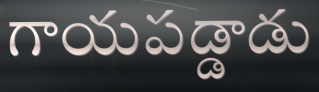
గాయపడ్డాడు